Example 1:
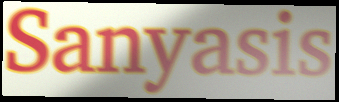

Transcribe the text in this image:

Sanyasis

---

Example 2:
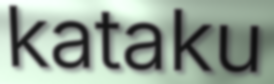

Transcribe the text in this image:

kataku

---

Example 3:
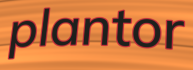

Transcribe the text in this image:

plantor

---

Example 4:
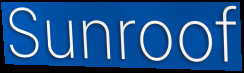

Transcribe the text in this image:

Sunroof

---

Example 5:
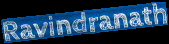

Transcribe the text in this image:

Ravindranath